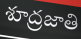
శూద్రజాతి